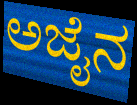
ಅಜೈನ